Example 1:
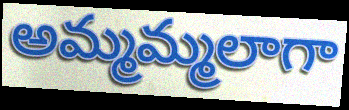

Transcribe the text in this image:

అమ్మమ్మలాగా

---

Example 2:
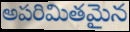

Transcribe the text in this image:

అపరిమితమైన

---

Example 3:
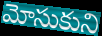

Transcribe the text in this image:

మోసుకుని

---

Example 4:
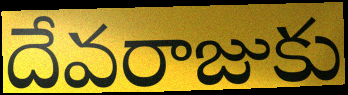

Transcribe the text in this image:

దేవరాజుకు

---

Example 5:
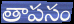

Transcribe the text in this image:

తాపసం